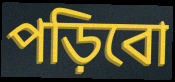
পড়িবো